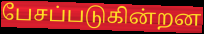
பேசப்படுகின்றன